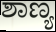
ಶಾಣ್ಯ